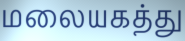
மலையகத்து